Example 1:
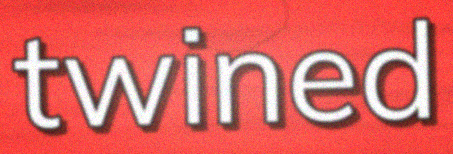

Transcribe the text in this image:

twined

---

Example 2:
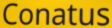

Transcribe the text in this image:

Conatus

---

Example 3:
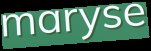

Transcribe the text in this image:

maryse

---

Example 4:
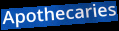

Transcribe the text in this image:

Apothecaries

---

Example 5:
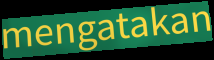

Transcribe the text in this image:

mengatakan